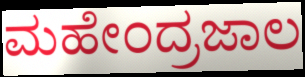
ಮಹೇಂದ್ರಜಾಲ